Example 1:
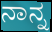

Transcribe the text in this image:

ನಾನ್ನ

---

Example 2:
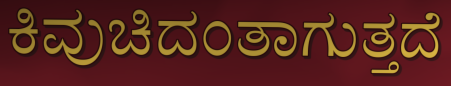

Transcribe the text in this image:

ಕಿವುಚಿದಂತಾಗುತ್ತದೆ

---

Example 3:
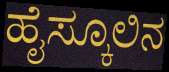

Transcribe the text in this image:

ಹೈಸ್ಕೂಲಿನ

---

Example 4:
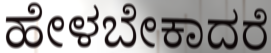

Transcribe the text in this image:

ಹೇಳಬೇಕಾದರೆ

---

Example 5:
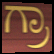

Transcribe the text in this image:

ಗ್ರಾ